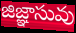
జిజ్ఞాసువు